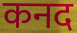
कनद